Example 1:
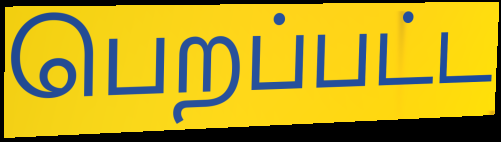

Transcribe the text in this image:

பெறப்பட்ட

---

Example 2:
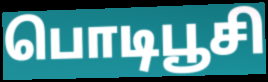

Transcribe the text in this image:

பொடிபூசி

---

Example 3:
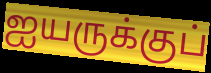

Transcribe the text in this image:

ஐயருக்குப்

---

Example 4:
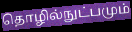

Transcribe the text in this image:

தொழில்நுட்பமும்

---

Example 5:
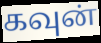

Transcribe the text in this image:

கவுன்